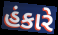
હંકારે